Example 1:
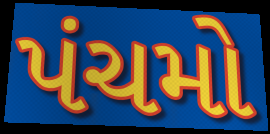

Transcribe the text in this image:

પંચમો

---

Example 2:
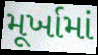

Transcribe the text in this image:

મૂર્ખામાં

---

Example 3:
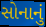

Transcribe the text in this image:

સોનાનું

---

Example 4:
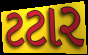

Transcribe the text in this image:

ટટાર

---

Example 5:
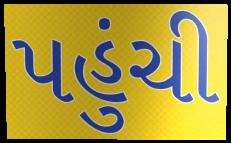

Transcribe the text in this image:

પહુંચી